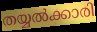
തയ്യൽക്കാരി